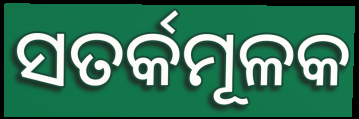
ସତର୍କମୂଳକ